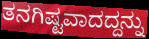
ತನಗಿಷ್ಟವಾದದ್ದನ್ನು